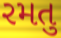
રમતુ